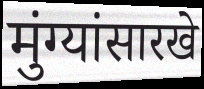
मुंग्यांसारखे